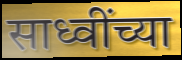
साध्वींच्या